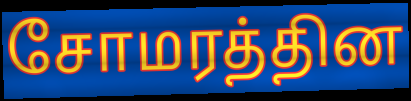
சோமரத்தின